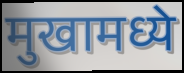
मुखामध्ये